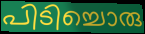
പിടിച്ചൊരു